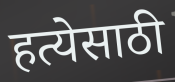
हत्येसाठी